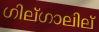
ഗില്ഗാലില്